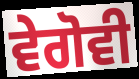
ਵੇਗੋਵੀ